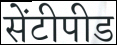
सेंटीपीड